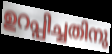
ഉറപ്പിച്ചതിനു